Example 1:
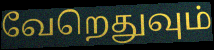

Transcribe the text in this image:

வேறெதுவும்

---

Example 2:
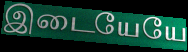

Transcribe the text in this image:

இடையேயே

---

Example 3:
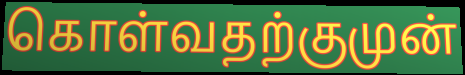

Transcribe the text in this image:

கொள்வதற்குமுன்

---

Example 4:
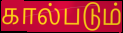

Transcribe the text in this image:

கால்படும்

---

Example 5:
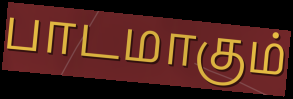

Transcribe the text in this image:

பாடமாகும்